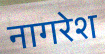
नागरेश